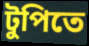
টুপিতে